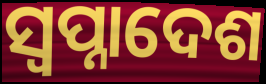
ସ୍ବପ୍ନାଦେଶ